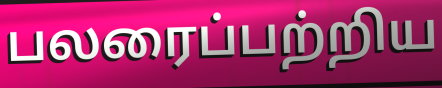
பலரைப்பற்றிய